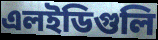
এলইডিগুলি